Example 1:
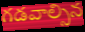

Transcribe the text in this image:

గడవాల్సిన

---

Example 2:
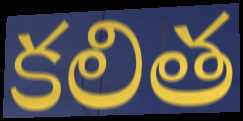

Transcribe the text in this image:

కలిత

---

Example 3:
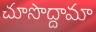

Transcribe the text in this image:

చూసొద్దామా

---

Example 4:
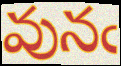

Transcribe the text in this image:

వునఁ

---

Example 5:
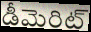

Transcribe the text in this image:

డీమెరిట్